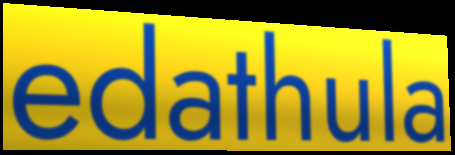
edathula